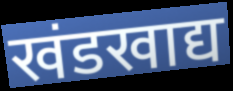
खंडखाद्य